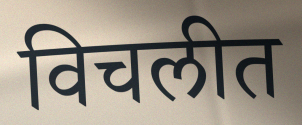
विचलीत